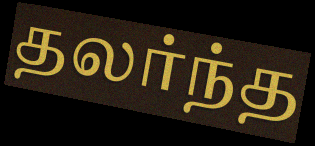
தலர்ந்த